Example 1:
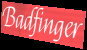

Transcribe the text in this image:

Badfinger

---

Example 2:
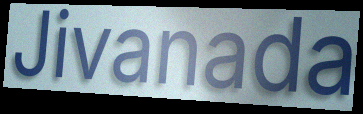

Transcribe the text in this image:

Jivanada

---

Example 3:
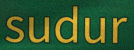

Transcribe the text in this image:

sudur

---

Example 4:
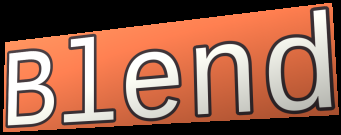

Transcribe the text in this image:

Blend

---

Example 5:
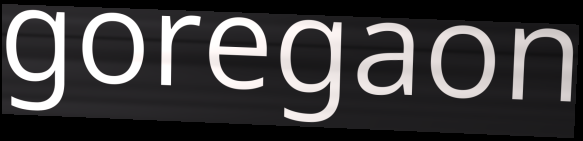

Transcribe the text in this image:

goregaon